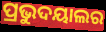
ପ୍ରଭୁଦୟାଲର